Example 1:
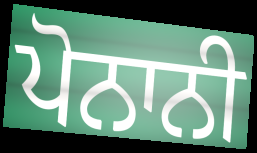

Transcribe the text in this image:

ਪੋਨਾਨੀ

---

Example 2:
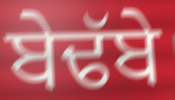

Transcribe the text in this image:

ਬੇਢੱਬੇ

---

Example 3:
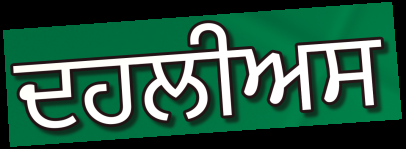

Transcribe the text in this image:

ਦਹਲੀਅਸ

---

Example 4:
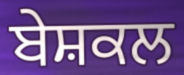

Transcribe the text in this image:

ਬੇਸ਼ਕਲ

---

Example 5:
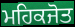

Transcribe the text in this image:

ਮਹਿਕਜੋਤ